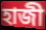
হাজী